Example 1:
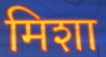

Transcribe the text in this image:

मिशा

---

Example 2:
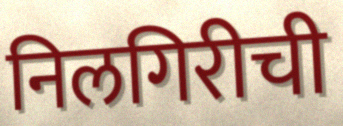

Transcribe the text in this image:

निलगिरीची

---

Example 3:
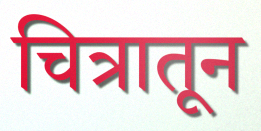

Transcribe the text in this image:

चित्रातून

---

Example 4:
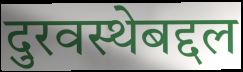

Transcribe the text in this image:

दुरवस्थेबद्दल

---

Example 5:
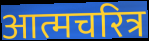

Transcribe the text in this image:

आत्मचरित्र